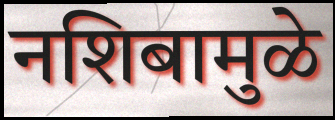
नशिबामुळे